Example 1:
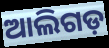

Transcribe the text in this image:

ଆଲିଗଡ଼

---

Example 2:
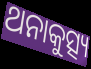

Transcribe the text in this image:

ଥନାକୁତ୍ସ୍ୟ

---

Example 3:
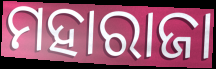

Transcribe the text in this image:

ମହାରାଜା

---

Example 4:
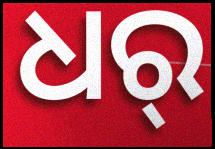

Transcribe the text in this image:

ଧର୍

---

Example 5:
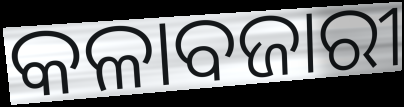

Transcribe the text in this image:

କଳାବଜାରୀ